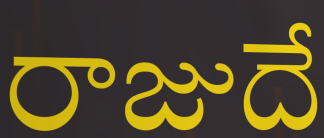
రాజుదే